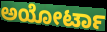
ಅಯೋರ್ಟಾ